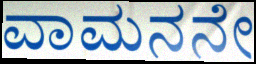
ವಾಮನನೇ